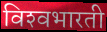
विश्वभारती